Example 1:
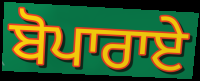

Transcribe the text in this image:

ਬੋਪਾਰਾਏ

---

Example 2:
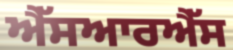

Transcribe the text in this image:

ਐੱਸਆਰਐੱਸ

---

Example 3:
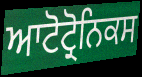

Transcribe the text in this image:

ਆਟੋਟ੍ਰੋਨਿਕਸ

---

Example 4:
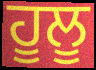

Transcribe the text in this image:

ਹੂਲੂ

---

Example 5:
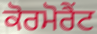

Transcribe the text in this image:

ਕੋਰਮੋਰੈਂਟ